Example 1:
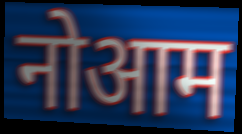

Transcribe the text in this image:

नोआम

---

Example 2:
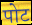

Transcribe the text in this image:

पोट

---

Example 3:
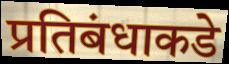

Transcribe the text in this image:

प्रतिबंधाकडे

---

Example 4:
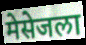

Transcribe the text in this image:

मेसेजला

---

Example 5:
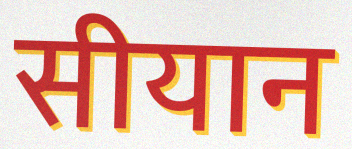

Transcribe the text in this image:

सीयान